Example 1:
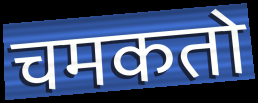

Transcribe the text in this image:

चमकतो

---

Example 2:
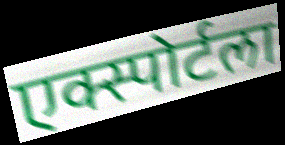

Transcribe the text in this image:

एक्स्पोर्टला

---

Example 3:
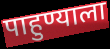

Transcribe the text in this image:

पाहुण्याला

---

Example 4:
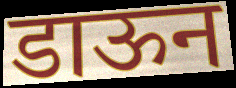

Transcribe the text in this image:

डाऊन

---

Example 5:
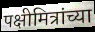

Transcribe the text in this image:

पक्षीमित्रांच्या